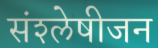
संश्लेषीजन